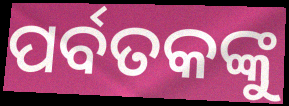
ପର୍ବତକଙ୍କୁ